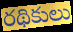
రథికులు